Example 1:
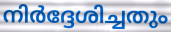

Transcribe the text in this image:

നിർദ്ദേശിച്ചതും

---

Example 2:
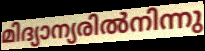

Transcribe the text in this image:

മിദ്യാന്യരിൽനിന്നു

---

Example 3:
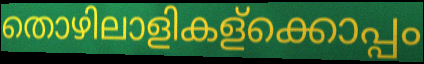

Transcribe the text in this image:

തൊഴിലാളികള്ക്കൊപ്പം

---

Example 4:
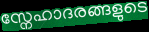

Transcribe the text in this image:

സ്നേഹാദരങ്ങളുടെ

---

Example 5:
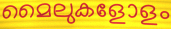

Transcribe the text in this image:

മൈലുകളോളം